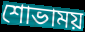
শোভাময়